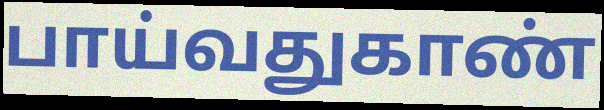
பாய்வதுகாண்